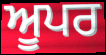
ਅੂਪਰ